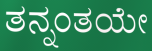
ತನ್ನಂತಯೇ